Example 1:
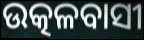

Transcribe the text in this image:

ଉତ୍କଳବାସୀ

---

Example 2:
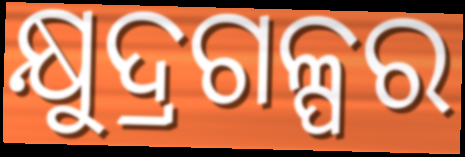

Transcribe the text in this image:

କ୍ଷୁଦ୍ରଗଳ୍ପର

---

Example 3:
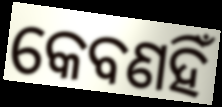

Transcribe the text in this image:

କେବଣହିଁ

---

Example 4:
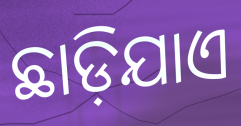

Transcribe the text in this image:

ଛାଡ଼ିଯାଏ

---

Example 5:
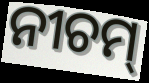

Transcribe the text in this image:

ନୀଚମ୍